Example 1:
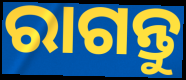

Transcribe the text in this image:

ରାଗନ୍ତୁ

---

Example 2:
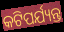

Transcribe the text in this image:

କଟିପର୍ଯ୍ୟନ୍ତ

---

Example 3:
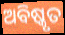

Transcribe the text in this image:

ଅବିଷ୍କୃତ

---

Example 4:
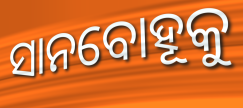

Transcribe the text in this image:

ସାନବୋହୂକୁ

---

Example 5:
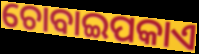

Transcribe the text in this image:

ଚୋବାଇପକାଏ